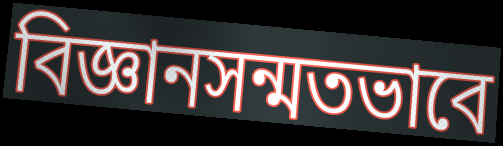
বিজ্ঞানসন্মতভাবে